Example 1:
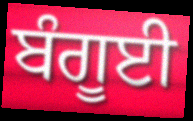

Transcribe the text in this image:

ਬੰਗੂਈ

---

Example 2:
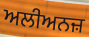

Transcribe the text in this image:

ਅਲੀਅਨਜ਼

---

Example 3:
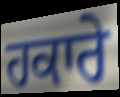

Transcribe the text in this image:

ਹਕਾਰੇ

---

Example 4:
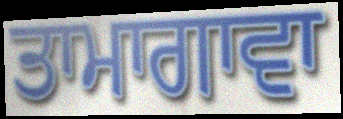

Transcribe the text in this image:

ਤਾਮਾਗਾਵਾ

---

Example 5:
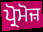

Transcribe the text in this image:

ਪ੍ਰੋਮੋਜ਼